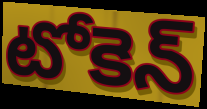
టోకెన్